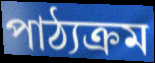
পাঠ্য়ক্ৰম